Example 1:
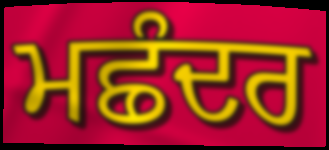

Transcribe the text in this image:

ਮਛੰਦਰ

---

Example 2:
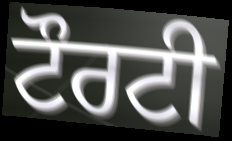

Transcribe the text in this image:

ਟੌਰਟੀ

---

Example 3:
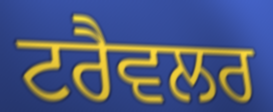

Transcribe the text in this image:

ਟਰੈਵਲਰ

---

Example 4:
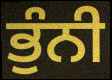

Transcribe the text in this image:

ਭੁੰਨੀ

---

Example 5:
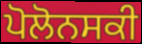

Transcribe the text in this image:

ਪੋਲੋਨਸਕੀ